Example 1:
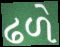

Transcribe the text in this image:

ઢળે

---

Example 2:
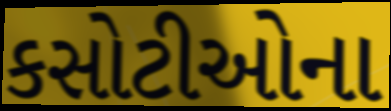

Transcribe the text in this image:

કસોટીઓના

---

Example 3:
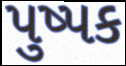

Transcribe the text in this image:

પુષ્પક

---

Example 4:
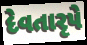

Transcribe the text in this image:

દેવતારૃપે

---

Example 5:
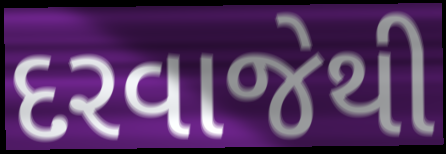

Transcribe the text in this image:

દરવાજેથી